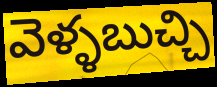
వెళ్ళబుచ్చి